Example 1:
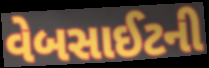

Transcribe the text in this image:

વેબસાઈટની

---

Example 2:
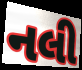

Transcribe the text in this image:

નલી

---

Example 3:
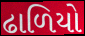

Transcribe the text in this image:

ઢાળિયો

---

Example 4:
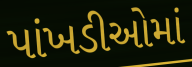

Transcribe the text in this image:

પાંખડીઓમાં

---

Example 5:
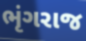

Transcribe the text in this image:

ભૃંગરાજ